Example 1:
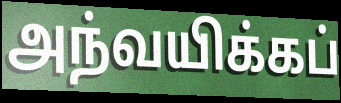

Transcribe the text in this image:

அந்வயிக்கப்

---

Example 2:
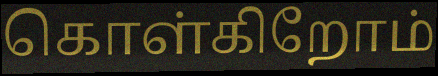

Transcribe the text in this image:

கொள்கிறோம்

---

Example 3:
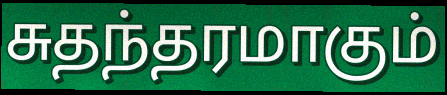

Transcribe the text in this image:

சுதந்தரமாகும்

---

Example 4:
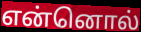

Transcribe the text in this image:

என்னொல்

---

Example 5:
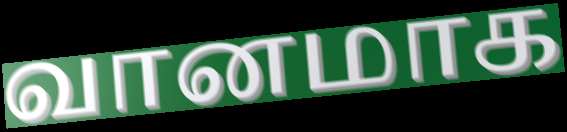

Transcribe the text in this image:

வானமாக